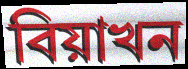
বিয়াখন